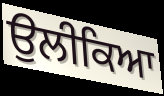
ਉਲੀਕਿਆ